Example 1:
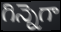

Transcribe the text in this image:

గిన్నెగా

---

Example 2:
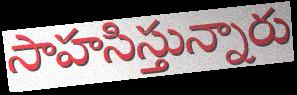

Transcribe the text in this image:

సాహసిస్తున్నారు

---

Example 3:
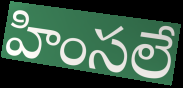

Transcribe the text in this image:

హింసలే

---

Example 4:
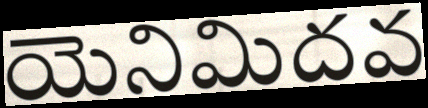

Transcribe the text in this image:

యెనిమిదవ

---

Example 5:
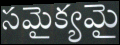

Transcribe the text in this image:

సమైక్యమై